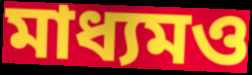
মাধ্যমও